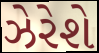
ઝેરેશે